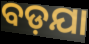
ବଡ଼ଯା